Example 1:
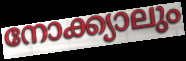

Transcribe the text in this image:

നോക്ക്യാലും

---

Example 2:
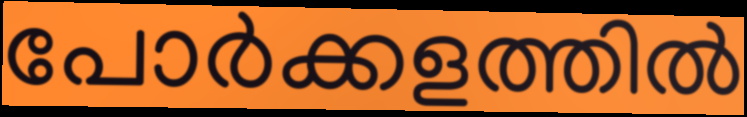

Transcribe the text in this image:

പോർക്കളത്തിൽ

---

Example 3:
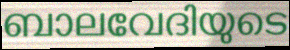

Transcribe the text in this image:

ബാലവേദിയുടെ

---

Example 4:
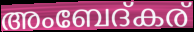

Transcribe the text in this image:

അംബേദ്കര്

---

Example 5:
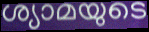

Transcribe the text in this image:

ശ്യാമയുടെ